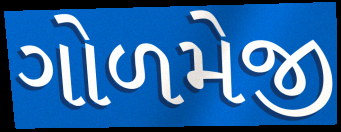
ગોળમેજી